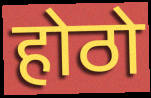
होठो